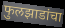
फुलझाडांचा